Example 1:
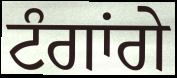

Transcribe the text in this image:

ਟੰਗਾਂਗੇ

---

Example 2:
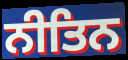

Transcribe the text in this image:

ਨੀਤਿਨ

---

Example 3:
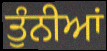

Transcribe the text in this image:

ਤੁੰਨੀਆਂ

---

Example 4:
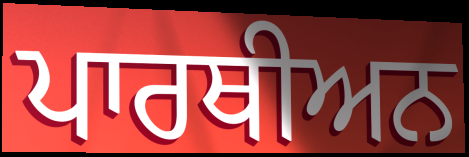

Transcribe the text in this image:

ਪਾਰਥੀਅਨ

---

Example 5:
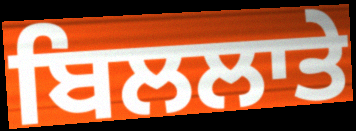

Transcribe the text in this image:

ਬਿਲਲਾਤੇ